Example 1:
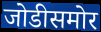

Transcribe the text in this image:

जोडीसमोर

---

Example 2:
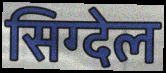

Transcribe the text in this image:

सिग्देल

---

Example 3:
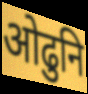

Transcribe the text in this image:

ओढुनि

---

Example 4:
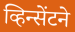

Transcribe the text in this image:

व्हिन्सेंटने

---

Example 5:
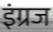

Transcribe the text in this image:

इंग्रज